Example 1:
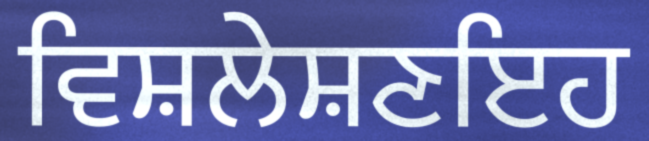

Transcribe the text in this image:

ਵਿਸ਼ਲੇਸ਼ਣਇਹ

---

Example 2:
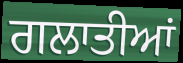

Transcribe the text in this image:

ਗਲਾਤੀਆਂ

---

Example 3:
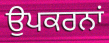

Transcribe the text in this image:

ਉਪਕਰਨਾਂ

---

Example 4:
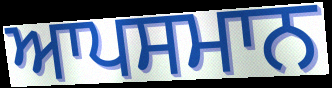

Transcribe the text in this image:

ਆਪਸਮਾਨ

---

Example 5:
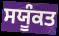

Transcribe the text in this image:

ਸਯੂੰਕਤ